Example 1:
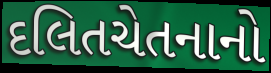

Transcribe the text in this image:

દલિતચેતનાનો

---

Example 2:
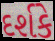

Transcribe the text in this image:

દર્શકે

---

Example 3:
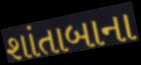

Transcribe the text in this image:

શાંતાબાના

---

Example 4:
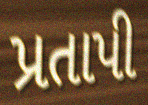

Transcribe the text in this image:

પ્રતાપી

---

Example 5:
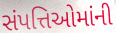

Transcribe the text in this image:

સંપત્તિઓમાંની